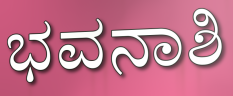
ಭವನಾಶಿ